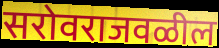
सरोवराजवळील